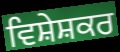
ਵਿਸ਼ੇਸ਼ਕਰ